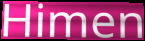
Himen